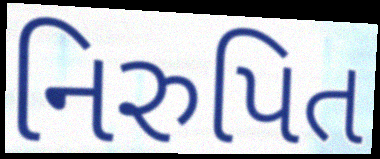
નિરુપિત